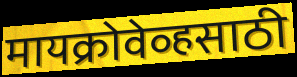
मायक्रोवेव्हसाठी